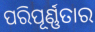
ପରିପୂର୍ଣ୍ଣତାର